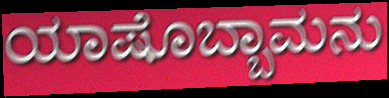
ಯಾಷೊಬ್ಬಾಮನು